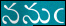
ననుఁ